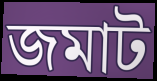
জমাট